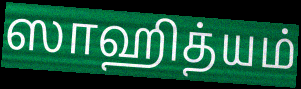
ஸாஹித்யம்